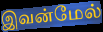
இவன்மேல்